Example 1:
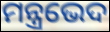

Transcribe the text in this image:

ମନ୍ତ୍ରଭେଦ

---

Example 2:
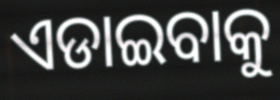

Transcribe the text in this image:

ଏଡାଇବାକୁ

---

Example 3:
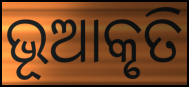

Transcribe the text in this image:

ଭୂଆକୃତି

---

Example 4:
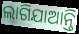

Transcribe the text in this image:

ଲାଗିଯାଆନ୍ତି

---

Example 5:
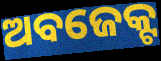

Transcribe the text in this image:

ଅବଜେକ୍ଟ